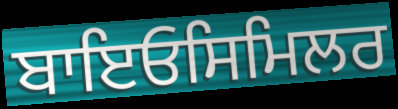
ਬਾਇਓਸਿਮਿਲਰ